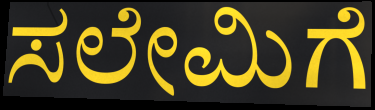
ಸಲೇಮಿಗೆ